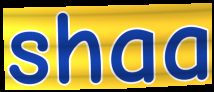
shaa